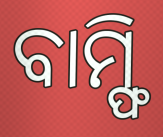
ବାମ୍ଫି